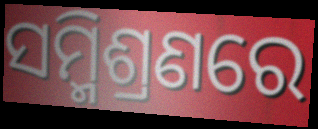
ସମ୍ମିଶ୍ରଣରେ